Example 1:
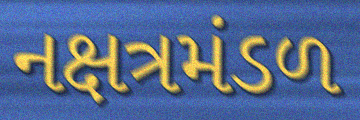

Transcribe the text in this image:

નક્ષત્રમંડળ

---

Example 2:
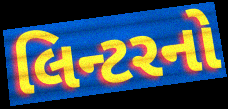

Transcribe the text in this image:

લિન્ટરનો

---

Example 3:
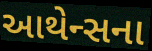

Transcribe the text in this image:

આથેન્સના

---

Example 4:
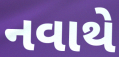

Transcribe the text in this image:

નવાથે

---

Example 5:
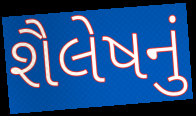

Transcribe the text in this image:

શૈલેષનું